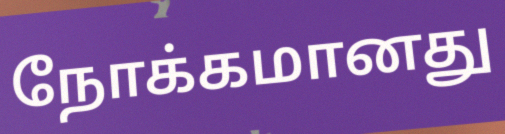
நோக்கமானது